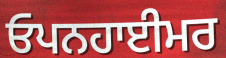
ਓਪਨਹਾਈਮਰ